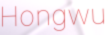
Hongwu